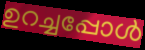
ഉറച്ചപ്പോൾ